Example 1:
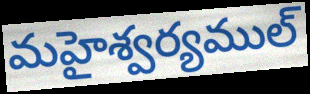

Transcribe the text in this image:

మహైశ్వర్యముల్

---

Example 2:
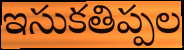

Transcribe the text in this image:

ఇసుకతిప్పల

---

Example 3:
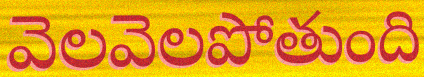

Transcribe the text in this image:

వెలవెలపోతుంది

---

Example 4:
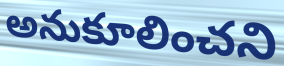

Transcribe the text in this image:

అనుకూలించని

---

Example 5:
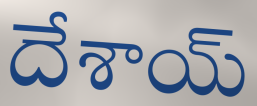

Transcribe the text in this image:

దేశాయ్